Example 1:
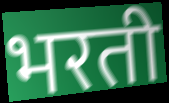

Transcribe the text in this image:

भरती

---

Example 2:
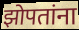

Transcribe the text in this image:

झोपतांना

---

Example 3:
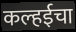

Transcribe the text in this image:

कल्हईचा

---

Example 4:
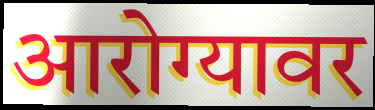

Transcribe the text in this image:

आरोग्यावर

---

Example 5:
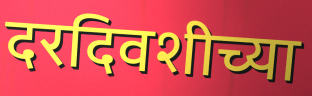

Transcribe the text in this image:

दरदिवशीच्या